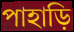
পাহাড়ি